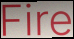
Fire